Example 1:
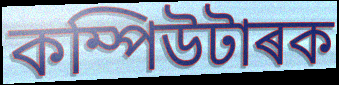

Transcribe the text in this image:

কম্পিউটাৰক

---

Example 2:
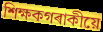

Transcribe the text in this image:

শিক্ষকগৰাকীয়ে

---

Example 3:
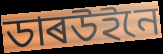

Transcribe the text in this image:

ডাৰউইনে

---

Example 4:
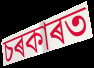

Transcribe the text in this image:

চৰকাৰত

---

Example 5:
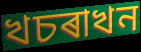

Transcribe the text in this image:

খচৰাখন